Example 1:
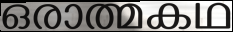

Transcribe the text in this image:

ഒരാത്മകഥ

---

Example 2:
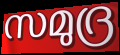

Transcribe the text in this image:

സമുദ്ര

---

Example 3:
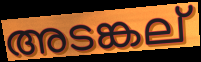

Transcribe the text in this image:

അടങ്കല്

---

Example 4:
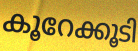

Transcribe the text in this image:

കൂറേക്കൂടി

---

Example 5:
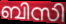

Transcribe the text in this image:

ബിസി